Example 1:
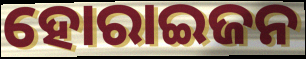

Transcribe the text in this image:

ହୋରାଇଜନ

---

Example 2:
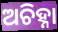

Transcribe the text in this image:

ଅଚିହ୍ନା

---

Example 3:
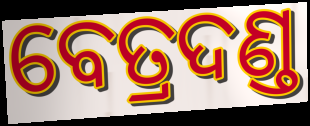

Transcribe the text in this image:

ବେତ୍ରଦଣ୍ଡ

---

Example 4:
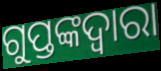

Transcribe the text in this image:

ଗୁପ୍ତଙ୍କଦ୍ୱାରା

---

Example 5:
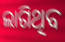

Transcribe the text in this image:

ଲାଗିଥିବ